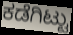
ಕಡೆಗಿಟ್ಟು